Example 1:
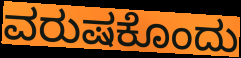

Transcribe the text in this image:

ವರುಷಕೊಂದು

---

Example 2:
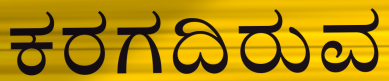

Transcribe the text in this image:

ಕರಗದಿರುವ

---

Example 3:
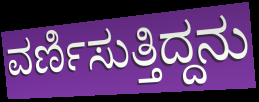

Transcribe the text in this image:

ವರ್ಣಿಸುತ್ತಿದ್ದನು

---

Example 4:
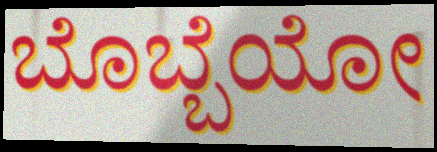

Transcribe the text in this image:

ಬೊಬ್ಬೆಯೋ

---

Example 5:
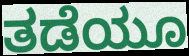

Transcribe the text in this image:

ತಡೆಯೂ